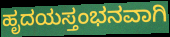
ಹೃದಯಸ್ತಂಭನವಾಗಿ